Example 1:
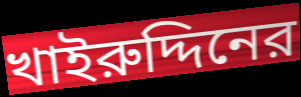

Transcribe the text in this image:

খাইরুদ্দিনের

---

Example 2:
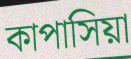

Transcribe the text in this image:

কাপাসিয়া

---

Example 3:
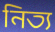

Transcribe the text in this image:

নিত্য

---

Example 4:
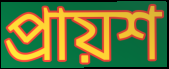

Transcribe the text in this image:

প্রায়শ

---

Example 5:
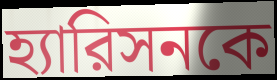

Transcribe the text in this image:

হ্যারিসনকে